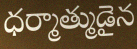
ధర్మాత్ముడైన